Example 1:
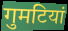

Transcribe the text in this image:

गुमटियां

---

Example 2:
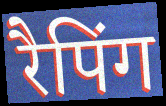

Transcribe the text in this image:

रैपिंग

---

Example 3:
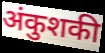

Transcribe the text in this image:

अंकुशकी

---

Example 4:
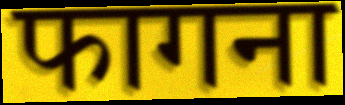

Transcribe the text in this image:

फागना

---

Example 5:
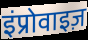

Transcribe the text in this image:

इंप्रोवाइज़